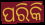
ପରିକି